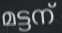
മട്ടന്